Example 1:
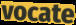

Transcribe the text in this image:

vocate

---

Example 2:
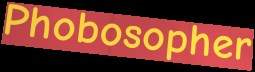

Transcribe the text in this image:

Phobosopher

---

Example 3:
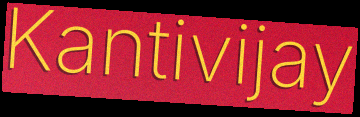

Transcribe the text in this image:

Kantivijay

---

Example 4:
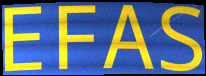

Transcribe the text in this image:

EFAS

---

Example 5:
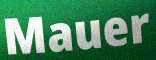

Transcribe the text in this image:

Mauer